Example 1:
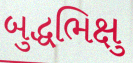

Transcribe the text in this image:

બુદ્ધભિક્ષુ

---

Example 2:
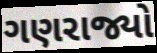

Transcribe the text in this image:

ગણરાજ્યો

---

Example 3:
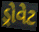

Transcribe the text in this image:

ડ્રોવેટ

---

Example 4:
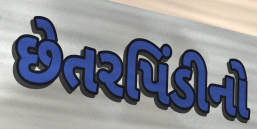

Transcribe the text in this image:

છેતરપિંડીનો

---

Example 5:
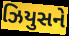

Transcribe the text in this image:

ઝિયુસને